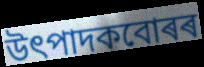
উৎপাদকবোৰৰ